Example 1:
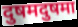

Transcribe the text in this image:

दुषमदुषमा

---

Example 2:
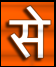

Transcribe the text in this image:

से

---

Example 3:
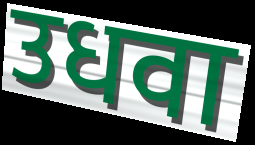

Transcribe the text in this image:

उधवा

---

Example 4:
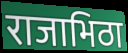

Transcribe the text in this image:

राजाभिठा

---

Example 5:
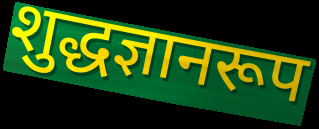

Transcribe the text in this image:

शुद्धज्ञानरूप